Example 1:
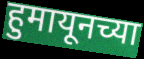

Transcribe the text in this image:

हुमायूनच्या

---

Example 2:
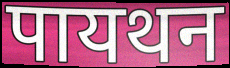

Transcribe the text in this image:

पायथन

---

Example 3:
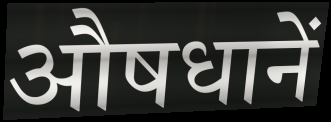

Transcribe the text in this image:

औषधानें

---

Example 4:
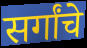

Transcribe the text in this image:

सर्गांचे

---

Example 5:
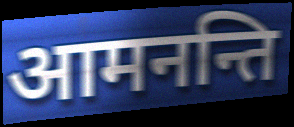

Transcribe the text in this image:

आमनन्ति